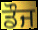
ਡੌਜ